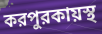
করপুরকায়স্থ